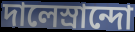
দালেস্রান্দো